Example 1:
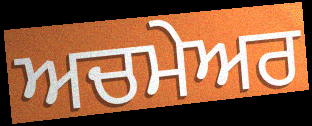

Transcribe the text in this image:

ਅਚਮੇਅਰ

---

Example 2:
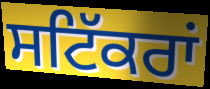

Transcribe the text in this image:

ਸਟਿੱਕਰਾਂ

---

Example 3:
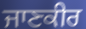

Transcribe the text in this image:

ਜਾਣਕੀਰ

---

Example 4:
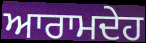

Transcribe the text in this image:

ਆਰਾਮਦੇਹ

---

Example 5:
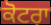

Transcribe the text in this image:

ਕੋਟਰਾ